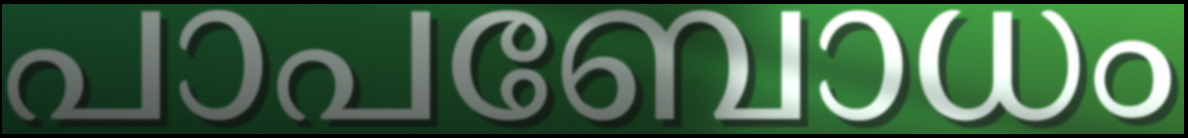
പാപബോധം